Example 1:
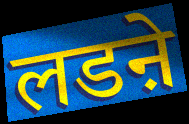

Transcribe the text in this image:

लडऩे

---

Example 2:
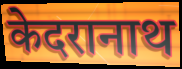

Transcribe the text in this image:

केदरानाथ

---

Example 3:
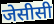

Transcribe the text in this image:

जेसीसी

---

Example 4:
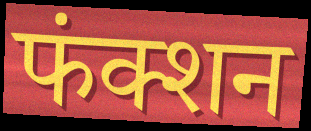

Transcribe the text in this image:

फंक्शन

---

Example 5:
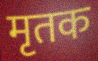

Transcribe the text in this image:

मृतक